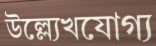
উল্ল্যেখযোগ্য